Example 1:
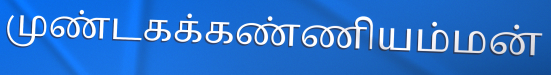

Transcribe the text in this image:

முண்டகக்கண்ணியம்மன்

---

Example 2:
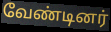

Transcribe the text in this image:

வேண்டினர்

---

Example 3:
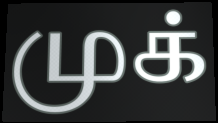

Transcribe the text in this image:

முக்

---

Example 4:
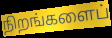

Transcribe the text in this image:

நிறங்களைப்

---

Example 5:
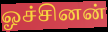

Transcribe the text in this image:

ஓச்சினன்